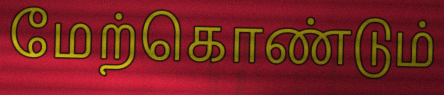
மேற்கொண்டும்